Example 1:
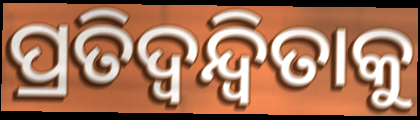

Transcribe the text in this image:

ପ୍ରତିଦ୍ୱନ୍ଦ୍ୱିତାକୁ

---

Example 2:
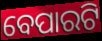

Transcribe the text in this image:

ବେପାରଟି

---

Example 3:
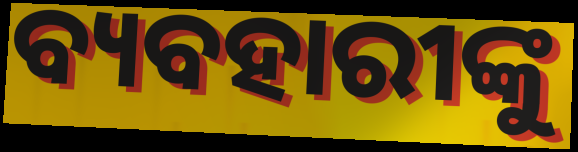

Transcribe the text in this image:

ବ୍ୟବହାରୀଙ୍କୁ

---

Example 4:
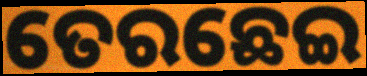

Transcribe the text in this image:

ତେରଛେଇ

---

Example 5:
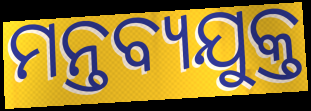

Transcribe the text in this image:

ମନ୍ତବ୍ୟଯୁକ୍ତ